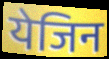
येजिन